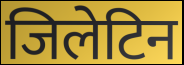
जिलेटिन